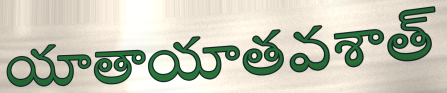
యాతాయాతవశాత్